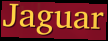
Jaguar